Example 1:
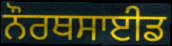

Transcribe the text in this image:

ਨੌਰਥਸਾਈਡ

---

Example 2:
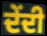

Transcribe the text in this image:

ਦੇਂਦੀ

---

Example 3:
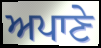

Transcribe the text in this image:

ਅਪਾਣੇ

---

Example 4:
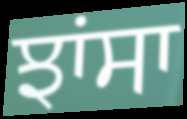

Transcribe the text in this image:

ਝਾਂਸਾ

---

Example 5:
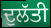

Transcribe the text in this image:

ਦੁਲੱਤੀ